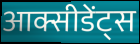
आक्सीडेंट्स